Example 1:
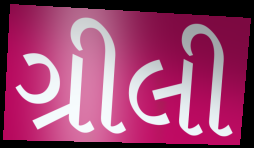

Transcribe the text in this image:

ગ્રીલી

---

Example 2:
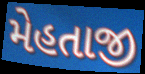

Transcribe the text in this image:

મેહતાજી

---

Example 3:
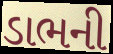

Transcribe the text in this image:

ડાભની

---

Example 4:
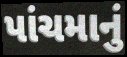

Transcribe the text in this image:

પાંચમાનું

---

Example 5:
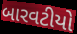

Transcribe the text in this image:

બારવટીયો